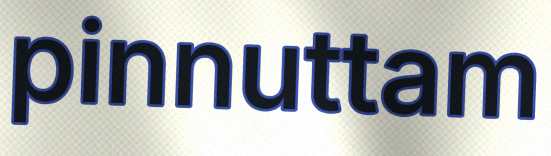
pinnuttam